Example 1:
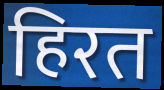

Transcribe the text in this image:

हिरत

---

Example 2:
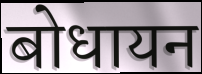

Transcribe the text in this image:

बोधायन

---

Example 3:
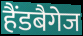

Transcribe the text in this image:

हैंडबैगेज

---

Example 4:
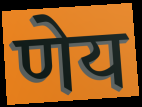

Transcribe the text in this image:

णेय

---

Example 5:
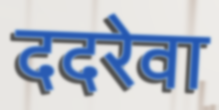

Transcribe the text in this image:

ददरेवा